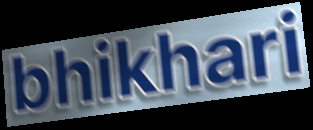
bhikhari